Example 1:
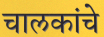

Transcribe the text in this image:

चालकांचे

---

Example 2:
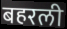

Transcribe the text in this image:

बहरली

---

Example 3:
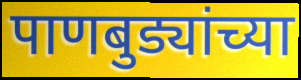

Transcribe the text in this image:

पाणबुड्यांच्या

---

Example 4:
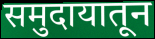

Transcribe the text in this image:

समुदायातून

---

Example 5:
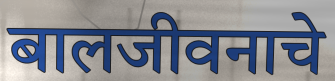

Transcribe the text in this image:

बालजीवनाचे